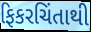
ફિકરચિંતાથી